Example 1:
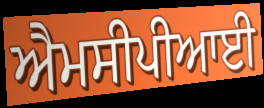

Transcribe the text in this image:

ਐਮਸੀਪੀਆਈ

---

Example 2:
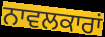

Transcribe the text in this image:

ਨਾਵਲਕਾਰਾਂ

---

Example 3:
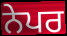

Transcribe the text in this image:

ਨੇਪਰ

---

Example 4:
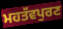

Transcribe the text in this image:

ਮਹਤੱਵਪੁਰਣ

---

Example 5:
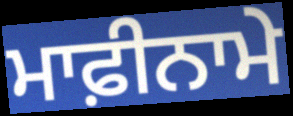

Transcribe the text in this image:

ਮਾਫ਼ੀਨਾਮੇ